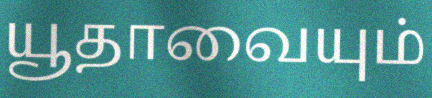
யூதாவையும்